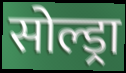
सोल्ड्रा